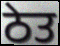
ठेउ